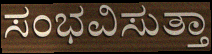
ಸಂಭವಿಸುತ್ತಾ